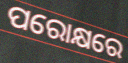
ପରୋକ୍ଷରେ